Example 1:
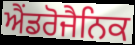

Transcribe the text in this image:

ਐਂਡਰੋਜੈਨਿਕ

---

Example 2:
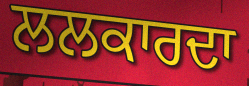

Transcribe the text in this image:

ਲਲਕਾਰਦਾ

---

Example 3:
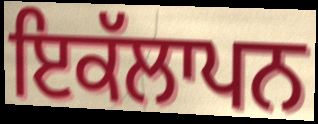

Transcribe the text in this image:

ਇਕੱਲਾਪਨ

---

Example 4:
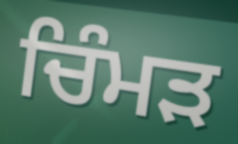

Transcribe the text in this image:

ਚਿੰਮੜ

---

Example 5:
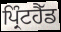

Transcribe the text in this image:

ਪ੍ਰਿੰਟਹੈੱਡ